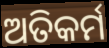
ଅତିକର୍ମ